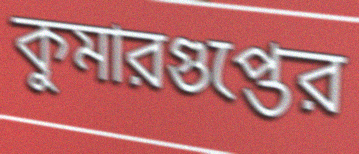
কুমারগুপ্তের